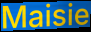
Maisie